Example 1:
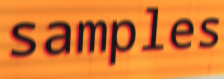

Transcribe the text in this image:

samples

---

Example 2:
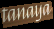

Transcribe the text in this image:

tanaya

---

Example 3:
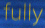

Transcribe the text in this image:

fully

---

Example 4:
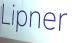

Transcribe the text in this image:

Lipner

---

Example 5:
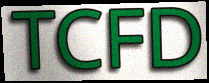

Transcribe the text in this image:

TCFD